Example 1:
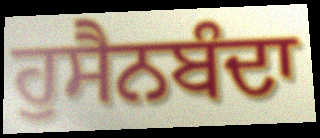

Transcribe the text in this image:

ਹੁਸੈਨਬੰਦਾ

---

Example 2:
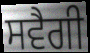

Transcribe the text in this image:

ਸਵੈਗੀ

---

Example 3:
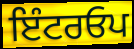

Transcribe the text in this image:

ਇੰਟਰਓਪ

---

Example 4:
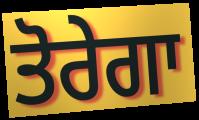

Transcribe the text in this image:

ਤੋਰੇਗਾ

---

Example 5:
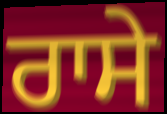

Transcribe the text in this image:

ਰਾਸੇ